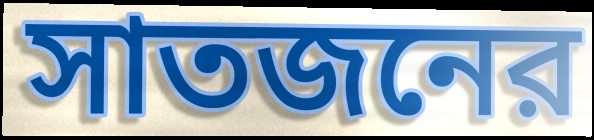
সাতজনের